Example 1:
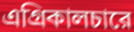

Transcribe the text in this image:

এগ্রিকালচারে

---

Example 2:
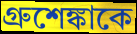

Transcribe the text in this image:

গ্রুশেঙ্কাকে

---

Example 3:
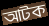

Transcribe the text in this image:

আটক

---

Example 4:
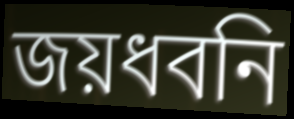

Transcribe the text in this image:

জয়ধবনি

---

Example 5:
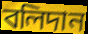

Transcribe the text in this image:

বলিদান